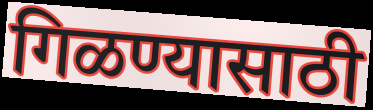
गिळण्यासाठी